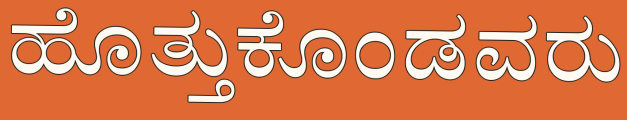
ಹೊತ್ತುಕೊಂಡವರು